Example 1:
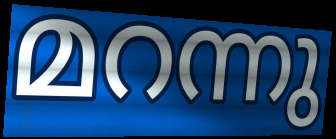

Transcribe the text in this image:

മറന്നു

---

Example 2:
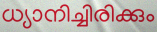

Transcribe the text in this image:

ധ്യാനിച്ചിരിക്കും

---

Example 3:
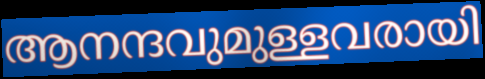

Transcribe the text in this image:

ആനന്ദവുമുള്ളവരായി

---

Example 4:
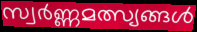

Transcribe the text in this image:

സ്വർണ്ണമത്സ്യങ്ങൾ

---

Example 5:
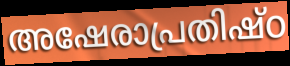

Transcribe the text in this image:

അഷേരാപ്രതിഷ്ഠ